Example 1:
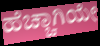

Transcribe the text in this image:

ಹೆಚ್ಚಾಗಿಯೇ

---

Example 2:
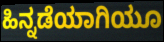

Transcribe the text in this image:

ಹಿನ್ನಡೆಯಾಗಿಯೂ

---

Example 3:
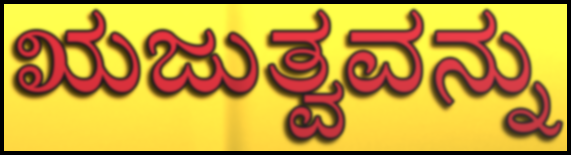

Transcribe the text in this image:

ಋಜುತ್ವವನ್ನು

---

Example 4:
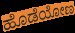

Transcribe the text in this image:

ಹೊಡೆಯೋಣ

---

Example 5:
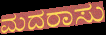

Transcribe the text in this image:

ಮದರಾಸು